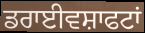
ਡਰਾਈਵਸ਼ਾਫਟਾਂ